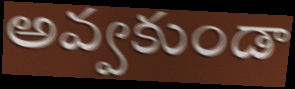
అవ్వకుండా